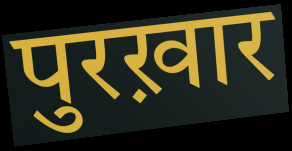
पुरख़ार